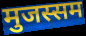
मुजस्सम